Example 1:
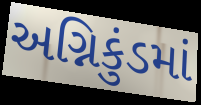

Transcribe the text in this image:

અગ્નિકુંડમાં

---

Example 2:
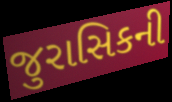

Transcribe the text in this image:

જુરાસિકની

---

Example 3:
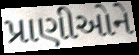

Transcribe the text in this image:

પ્રાણીઓને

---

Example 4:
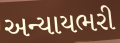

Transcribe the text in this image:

અન્યાયભરી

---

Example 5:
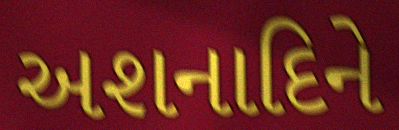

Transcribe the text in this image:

અશનાદિને